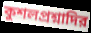
কুশলপ্রশ্নাদির